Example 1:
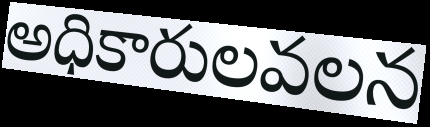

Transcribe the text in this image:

అధికారులవలన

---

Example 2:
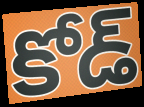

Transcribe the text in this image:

కోడ్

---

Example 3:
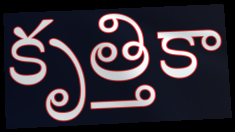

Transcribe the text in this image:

కృత్తికా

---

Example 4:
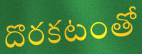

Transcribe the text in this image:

దొరకటంతో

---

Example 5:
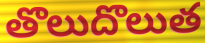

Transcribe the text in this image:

తొలుదొలుత